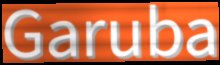
Garuba